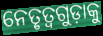
ନେତୃତ୍ୱଗୁଡ଼ାକୁ